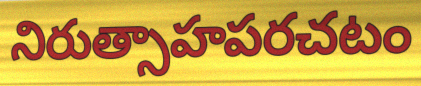
నిరుత్సాహపరచటం